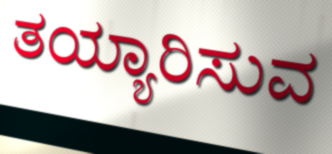
ತಯ್ಯಾರಿಸುವ